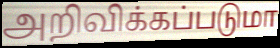
அறிவிக்கப்படுமா